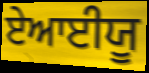
ਏਆਈਯੂ